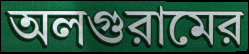
অলগুরামের